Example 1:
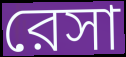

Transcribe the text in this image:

রেসা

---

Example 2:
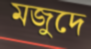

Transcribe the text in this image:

মজুদে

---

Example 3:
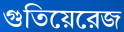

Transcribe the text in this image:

গুতিয়েরেজ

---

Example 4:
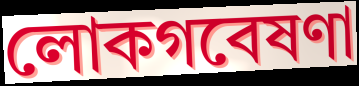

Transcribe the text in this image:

লোকগবেষণা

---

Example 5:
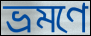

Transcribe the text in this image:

ভ্রমণে